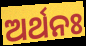
ଅର୍ଥନଃ